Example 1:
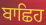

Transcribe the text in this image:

ਬਾਛਿਹ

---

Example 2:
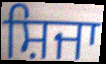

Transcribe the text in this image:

ਸ਼ਿਜਾ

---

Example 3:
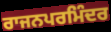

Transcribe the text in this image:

ਰਾਜਨਪਰਮਿੰਦਰ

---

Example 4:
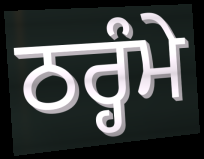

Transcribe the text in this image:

ਠਰ੍ਹੰਮੇ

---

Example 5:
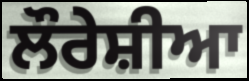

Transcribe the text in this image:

ਲੌਰੇਸ਼ੀਆ